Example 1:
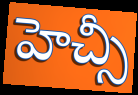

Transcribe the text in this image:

హెచ్సీ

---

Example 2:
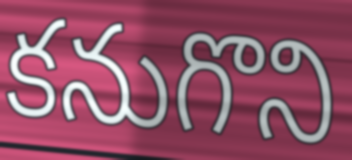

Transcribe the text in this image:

కనుగొని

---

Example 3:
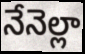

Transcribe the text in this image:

నేనెల్లా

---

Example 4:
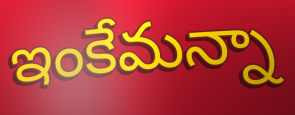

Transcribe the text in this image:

ఇంకేమన్నా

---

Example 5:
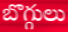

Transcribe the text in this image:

బొగ్గులు